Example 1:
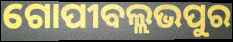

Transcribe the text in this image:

ଗୋପୀବଲ୍ଲଭପୁର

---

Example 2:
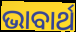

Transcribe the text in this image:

ଭାବାର୍ଥ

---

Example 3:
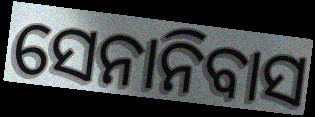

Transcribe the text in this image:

ସେନାନିବାସ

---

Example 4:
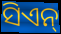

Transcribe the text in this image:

ସିଏନ୍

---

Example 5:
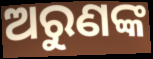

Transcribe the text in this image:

ଅରୁଣଙ୍କ